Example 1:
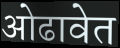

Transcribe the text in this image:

ओढावेत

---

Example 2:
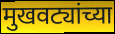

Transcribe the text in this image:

मुखवट्यांच्या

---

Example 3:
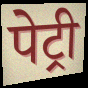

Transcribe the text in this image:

पेट्री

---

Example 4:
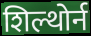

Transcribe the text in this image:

शिल्थोर्न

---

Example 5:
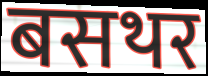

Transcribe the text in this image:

बसथर